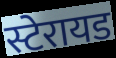
स्टेरायड